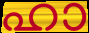
ഹാ